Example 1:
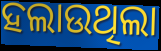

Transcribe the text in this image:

ହଲାଉଥିଲା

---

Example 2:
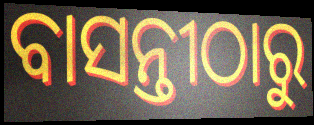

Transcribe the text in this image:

ବାସନ୍ତୀଠାରୁ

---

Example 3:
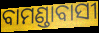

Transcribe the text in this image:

ବାମଣ୍ଡାବାସୀ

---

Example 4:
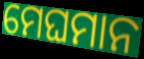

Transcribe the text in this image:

ମେଘମାନ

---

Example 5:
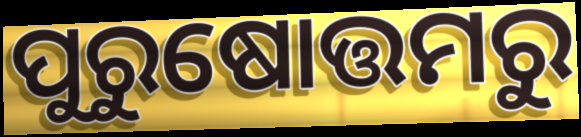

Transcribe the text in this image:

ପୁରୁଷୋତ୍ତମରୁ